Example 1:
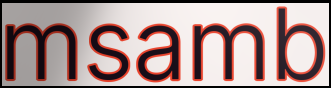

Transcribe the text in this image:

msamb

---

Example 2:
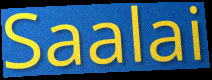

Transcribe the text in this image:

Saalai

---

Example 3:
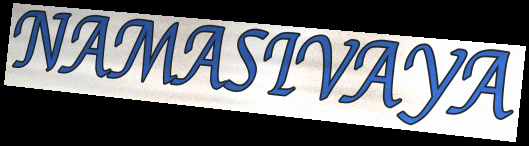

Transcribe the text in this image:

NAMASIVAYA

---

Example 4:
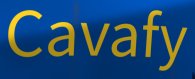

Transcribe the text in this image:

Cavafy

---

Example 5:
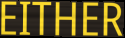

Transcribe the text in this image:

EITHER